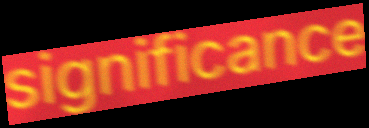
significance